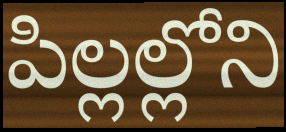
పిల్లల్లోని